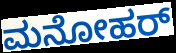
ಮನೋಹರ್